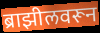
ब्राझीलवरून